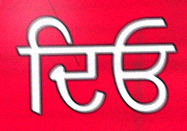
ਦਿਓ